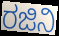
ರಜಿನಿ